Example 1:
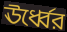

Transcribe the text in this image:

ঊর্ধ্বের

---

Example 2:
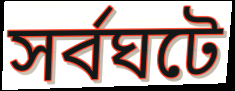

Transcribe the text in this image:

সর্বঘটে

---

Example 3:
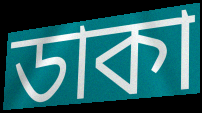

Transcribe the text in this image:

ডাকা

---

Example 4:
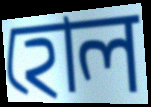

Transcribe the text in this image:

হোল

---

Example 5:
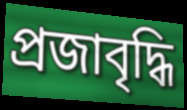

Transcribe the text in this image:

প্রজাবৃদ্ধি